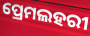
ପ୍ରେମଲହରୀ